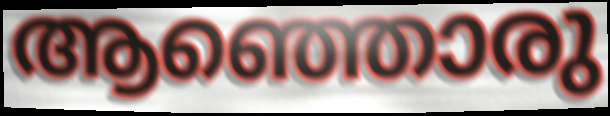
ആഞ്ഞൊരു